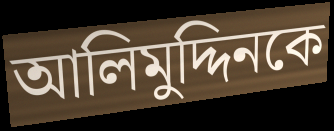
আলিমুদ্দিনকে